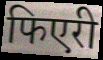
फिएरी